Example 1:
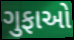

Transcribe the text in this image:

ગુફાઓ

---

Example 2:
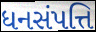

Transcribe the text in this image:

ધનસંપત્તિ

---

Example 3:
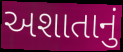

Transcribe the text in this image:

અશાતાનું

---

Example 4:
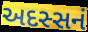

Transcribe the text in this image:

અદસ્સનં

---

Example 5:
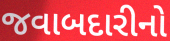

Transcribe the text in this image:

જવાબદારીનો